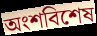
অংশবিশেষ